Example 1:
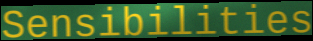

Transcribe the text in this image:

Sensibilities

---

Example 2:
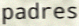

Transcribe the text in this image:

padres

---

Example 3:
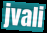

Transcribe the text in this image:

jvali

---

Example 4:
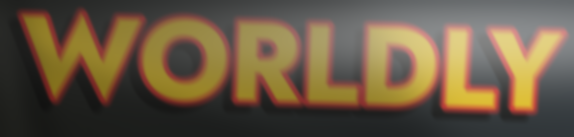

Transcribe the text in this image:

WORLDLY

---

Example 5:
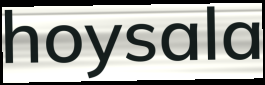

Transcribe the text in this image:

hoysala